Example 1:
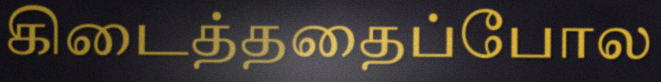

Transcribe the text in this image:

கிடைத்ததைப்போல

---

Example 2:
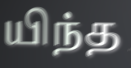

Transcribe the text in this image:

யிந்த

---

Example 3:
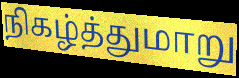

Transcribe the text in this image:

நிகழ்த்துமாறு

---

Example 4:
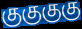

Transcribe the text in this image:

குகுகுகு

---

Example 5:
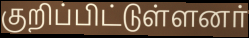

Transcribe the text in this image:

குறிப்பிட்டுள்ளனர்